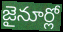
జైనూర్లో